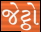
જેટ્ઠો